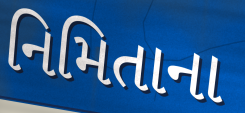
નિમિતાના